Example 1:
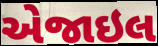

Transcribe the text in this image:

એજાઇલ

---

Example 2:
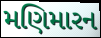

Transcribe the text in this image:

મણિમારન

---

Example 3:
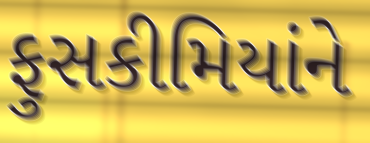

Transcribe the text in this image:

ફુસકીમિયાંને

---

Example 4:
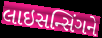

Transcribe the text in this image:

લાઇસન્સિંગને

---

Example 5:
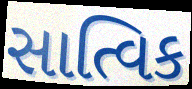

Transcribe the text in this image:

સાત્વિક